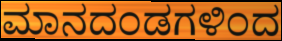
ಮಾನದಂಡಗಳಿಂದ